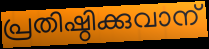
പ്രതിഷ്ഠിക്കുവാന്